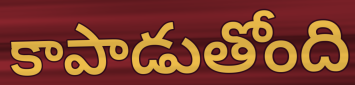
కాపాడుతోంది